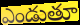
ఎండుతూ